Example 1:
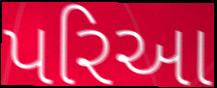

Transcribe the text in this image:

પરિઆ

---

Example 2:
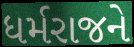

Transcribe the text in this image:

ધર્મરાજને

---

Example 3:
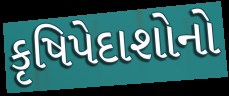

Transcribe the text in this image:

કૃષિપેદાશોનો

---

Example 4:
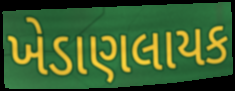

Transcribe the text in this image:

ખેડાણલાયક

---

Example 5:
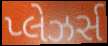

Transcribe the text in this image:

પ્લેઝર્સ